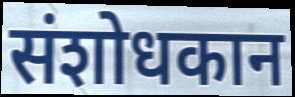
संशोधकान